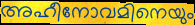
അഹീനോവമിനെയും